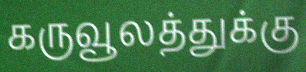
கருவூலத்துக்கு